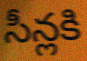
సీన్లకి